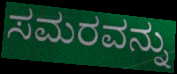
ಸಮರವನ್ನು